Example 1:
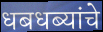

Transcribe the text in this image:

धबधब्यांचे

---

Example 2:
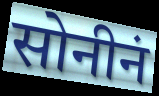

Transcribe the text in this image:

सोनीनं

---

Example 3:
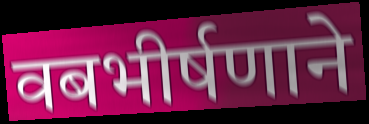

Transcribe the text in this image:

वबभीर्षणाने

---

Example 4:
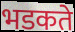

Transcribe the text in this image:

भडकते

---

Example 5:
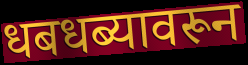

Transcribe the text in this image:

धबधब्यावरून